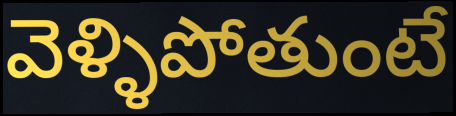
వెళ్ళిపోతుంటే